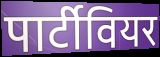
पार्टीवियर